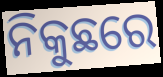
ନିକୁଛରେ